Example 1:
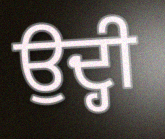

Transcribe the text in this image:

ਉਦ੍ਹੀ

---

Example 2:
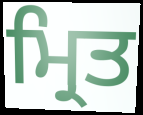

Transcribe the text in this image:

ਮ੍ਰਿਤ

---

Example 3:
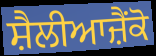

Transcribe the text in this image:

ਸ਼ੈਲੀਆਜ਼ੈਂਕੋ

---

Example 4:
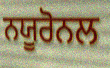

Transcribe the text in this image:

ਨਯੂਰੋਨਲ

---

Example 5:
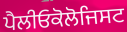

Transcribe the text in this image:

ਪੈਲੀਓਕੋਲੋਜਿਸਟ